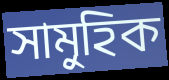
সামুহিক